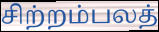
சிற்றம்பலத்